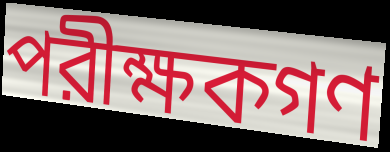
পরীক্ষকগণ